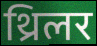
थ्रिलर